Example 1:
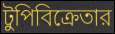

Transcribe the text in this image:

টুপিবিক্রেতার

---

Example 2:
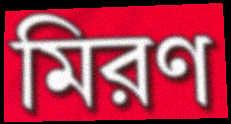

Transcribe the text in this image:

মিরণ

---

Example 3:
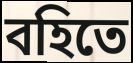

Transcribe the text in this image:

বহিতে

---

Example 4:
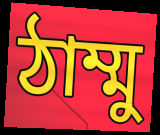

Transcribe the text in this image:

ঠাম্মু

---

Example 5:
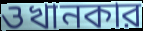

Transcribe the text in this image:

ওখানকার